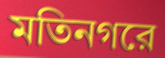
মতিনগরে